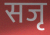
सजृ